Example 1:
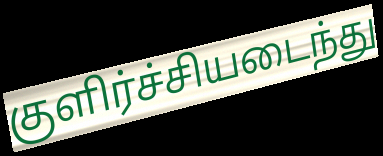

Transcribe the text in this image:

குளிர்ச்சியடைந்து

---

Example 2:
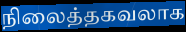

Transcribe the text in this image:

நிலைத்தகவலாக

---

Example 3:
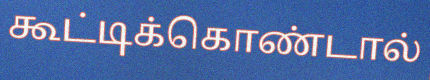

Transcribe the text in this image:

கூட்டிக்கொண்டால்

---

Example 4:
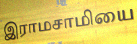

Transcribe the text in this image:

இராமசாமியை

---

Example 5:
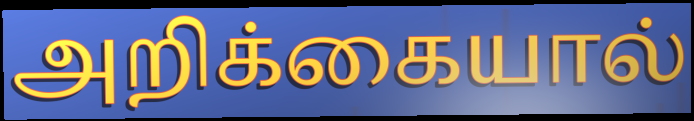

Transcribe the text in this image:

அறிக்கையால்